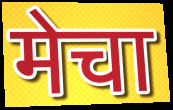
मेचा